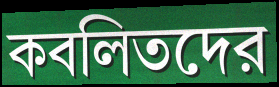
কবলিতদের